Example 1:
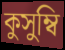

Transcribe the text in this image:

কুসুম্বি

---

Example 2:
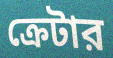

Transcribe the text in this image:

ক্রেটার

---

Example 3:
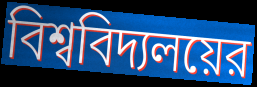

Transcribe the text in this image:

বিশ্ববিদ্যলয়ের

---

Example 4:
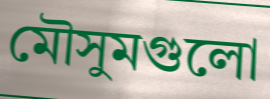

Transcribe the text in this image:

মৌসুমগুলো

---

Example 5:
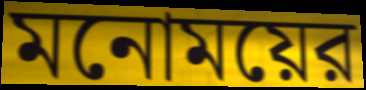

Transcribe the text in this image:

মনোময়ের